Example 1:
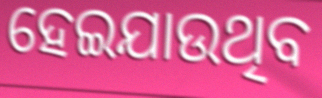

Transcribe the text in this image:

ହେଇଯାଉଥିବ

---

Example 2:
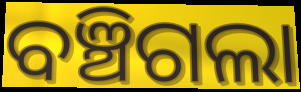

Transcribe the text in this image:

ବଞ୍ଚିଗଲା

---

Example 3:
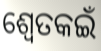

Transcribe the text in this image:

ଶ୍ୱେତକଇଁ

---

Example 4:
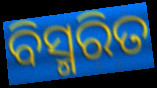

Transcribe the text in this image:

ବିସ୍ମରିତ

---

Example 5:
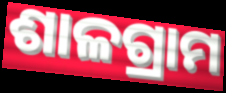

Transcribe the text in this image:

ଶାଳଗ୍ରାମ